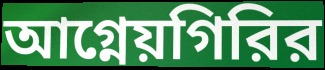
আগ্নেয়গিরির